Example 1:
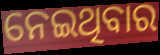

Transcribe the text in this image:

ନେଇଥିବାର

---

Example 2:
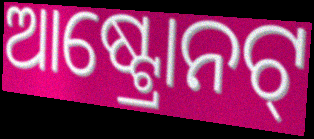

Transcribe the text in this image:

ଆଷ୍ଟ୍ରୋନଟ୍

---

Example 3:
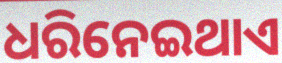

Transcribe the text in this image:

ଧରିନେଇଥାଏ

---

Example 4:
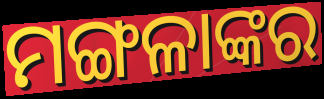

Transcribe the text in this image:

ମଙ୍ଗଳାଙ୍କର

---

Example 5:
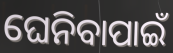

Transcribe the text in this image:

ଘେନିବାପାଇଁ